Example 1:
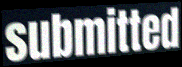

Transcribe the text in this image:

submitted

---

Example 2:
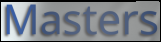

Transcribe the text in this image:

Masters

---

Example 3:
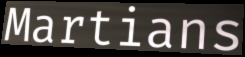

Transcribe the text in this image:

Martians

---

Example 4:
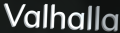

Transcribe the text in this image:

Valhalla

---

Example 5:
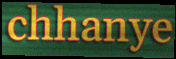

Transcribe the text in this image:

chhanye